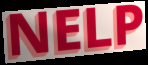
NELP